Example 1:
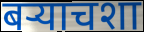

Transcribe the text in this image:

बऱ्याचशा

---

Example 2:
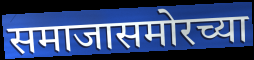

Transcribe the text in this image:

समाजासमोरच्या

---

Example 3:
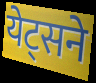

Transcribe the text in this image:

येट्सने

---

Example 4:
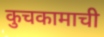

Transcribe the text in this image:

कुचकामाची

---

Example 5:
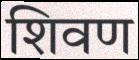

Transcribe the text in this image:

शिवण